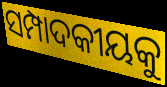
ସମ୍ପାଦକୀୟକୁ